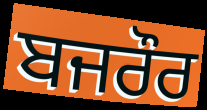
ਬਜਰੌਰ